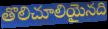
తొలిచూలియైనది